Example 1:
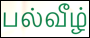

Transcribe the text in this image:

பல்வீழ்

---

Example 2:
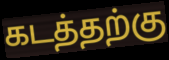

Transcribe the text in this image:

கடத்தற்கு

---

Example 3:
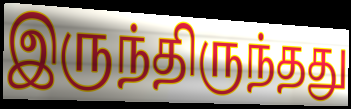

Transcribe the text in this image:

இருந்திருந்தது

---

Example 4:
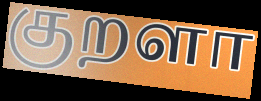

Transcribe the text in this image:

குறளா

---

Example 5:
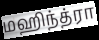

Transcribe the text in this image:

மஹிந்த்ரா